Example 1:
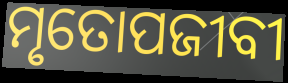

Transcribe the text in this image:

ମୃତୋପଜୀବୀ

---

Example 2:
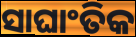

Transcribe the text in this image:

ସାଘାଂତିକ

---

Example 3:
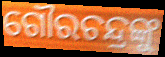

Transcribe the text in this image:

ଗୌରଚନ୍ଦ୍ରଙ୍କୁ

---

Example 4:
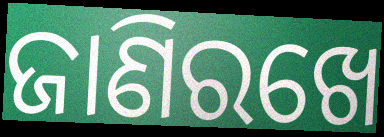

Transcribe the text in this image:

ଜାଣିରଖେ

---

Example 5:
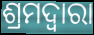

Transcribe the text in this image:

ଶ୍ରମଦ୍ଵାରା